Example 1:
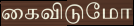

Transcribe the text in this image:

கைவிடுமோ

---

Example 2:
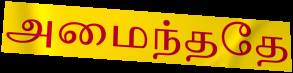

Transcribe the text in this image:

அமைந்ததே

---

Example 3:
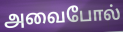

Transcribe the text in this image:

அவைபோல்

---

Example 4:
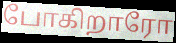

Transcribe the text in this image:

போகிறாரோ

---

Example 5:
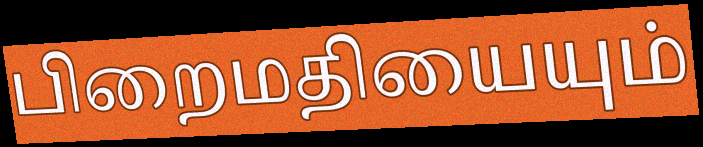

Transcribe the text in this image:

பிறைமதியையும்